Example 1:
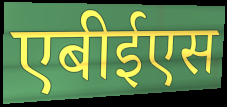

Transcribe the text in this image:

एबीईएस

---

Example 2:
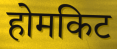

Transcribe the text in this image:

होमकिट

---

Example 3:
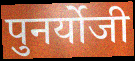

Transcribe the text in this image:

पुनर्योजी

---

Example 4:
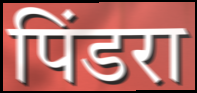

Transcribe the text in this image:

पिंडरा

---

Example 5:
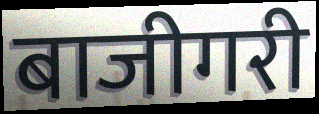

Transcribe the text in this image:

बाजीगरी